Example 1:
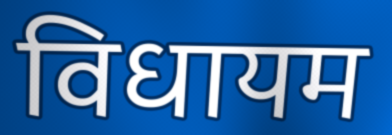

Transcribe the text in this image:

विधायम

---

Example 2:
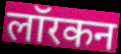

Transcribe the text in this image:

लॉरकन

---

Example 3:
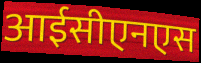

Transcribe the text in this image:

आईसीएनएस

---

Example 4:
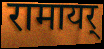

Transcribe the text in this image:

रामायर्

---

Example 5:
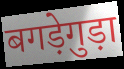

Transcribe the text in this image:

बगड़ेगुड़ा